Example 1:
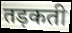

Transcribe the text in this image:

तड़कती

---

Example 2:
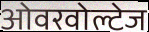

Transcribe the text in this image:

ओवरवोल्टेज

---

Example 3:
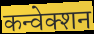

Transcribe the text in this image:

कन्वेक्शन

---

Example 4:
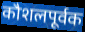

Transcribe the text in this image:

कौशलपूर्वक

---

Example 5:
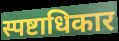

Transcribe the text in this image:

स्पष्टाधिकार